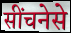
सींचनेसे